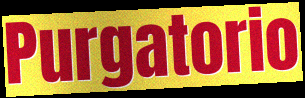
Purgatorio